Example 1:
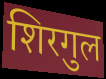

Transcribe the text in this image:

शिरगुल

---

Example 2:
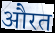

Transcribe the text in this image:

औरत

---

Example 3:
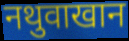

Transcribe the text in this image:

नथुवाखान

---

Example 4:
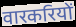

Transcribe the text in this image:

वारकरियों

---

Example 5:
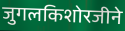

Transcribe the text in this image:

जुगलकिशोरजीने